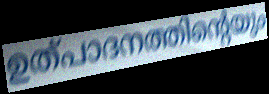
ഉത്പാദനത്തിന്റെയും